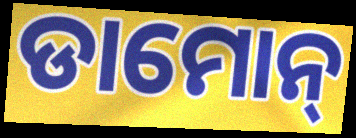
ଡାମୋନ୍